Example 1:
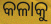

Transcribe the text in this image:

କଳାକୁ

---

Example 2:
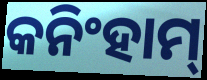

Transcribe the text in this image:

କନିଂହାମ୍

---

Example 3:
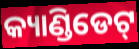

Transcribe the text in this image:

କ୍ୟାଣ୍ଡିଡେଟ୍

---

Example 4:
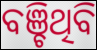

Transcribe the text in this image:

ବଞ୍ଚିଥିବି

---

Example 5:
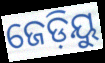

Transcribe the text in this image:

ଜେଡ଼ିୟୁ